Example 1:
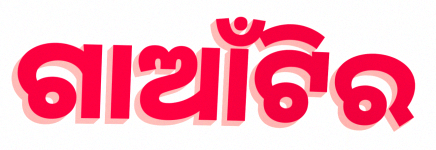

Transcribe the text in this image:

ଗାଆଁଟିର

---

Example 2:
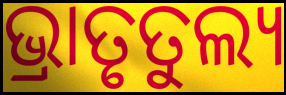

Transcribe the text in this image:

ଭ୍ରାତୃତୁଲ୍ୟ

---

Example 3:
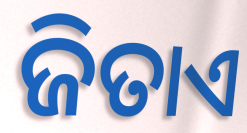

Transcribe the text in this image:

ଜିତାଏ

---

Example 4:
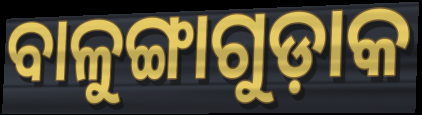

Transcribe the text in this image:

ବାଳୁଙ୍ଗାଗୁଡ଼ାକ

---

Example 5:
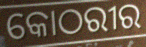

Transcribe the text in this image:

କୋଠରୀର